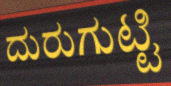
ದುರುಗುಟ್ಟಿ